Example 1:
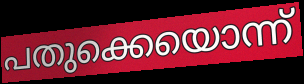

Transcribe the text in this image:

പതുക്കെയൊന്ന്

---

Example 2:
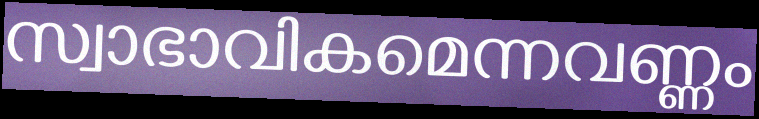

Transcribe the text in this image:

സ്വാഭാവികമെന്നവണ്ണം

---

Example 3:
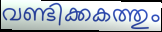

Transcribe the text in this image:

വണ്ടിക്കകത്തും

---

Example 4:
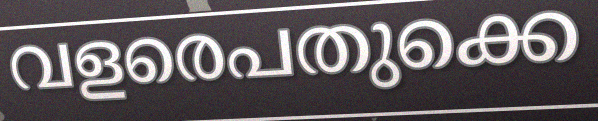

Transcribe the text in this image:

വളരെപതുക്കെ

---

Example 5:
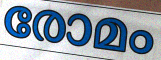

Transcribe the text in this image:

രോമം